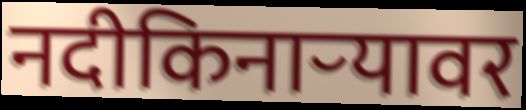
नदीकिनाऱ्यावर